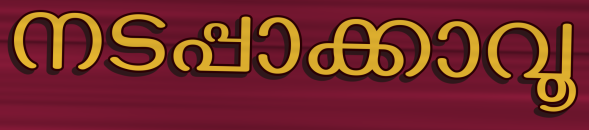
നടപ്പാക്കാവൂ